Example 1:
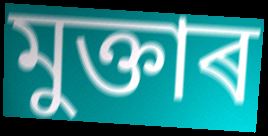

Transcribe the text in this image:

মুক্তাৰ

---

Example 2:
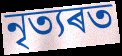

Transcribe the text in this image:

নৃত্যৰত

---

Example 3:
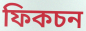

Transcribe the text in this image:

ফিকচন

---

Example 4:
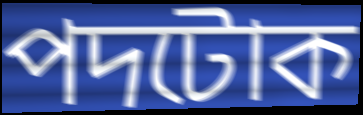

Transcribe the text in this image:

পদটোক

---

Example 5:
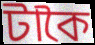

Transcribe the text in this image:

টাকৈ